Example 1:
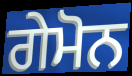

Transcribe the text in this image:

ਗੇਮੋਨ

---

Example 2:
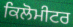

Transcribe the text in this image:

ਕਿਲੋਮੀਟਰ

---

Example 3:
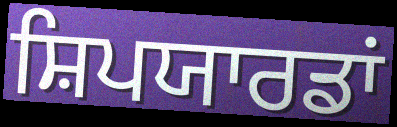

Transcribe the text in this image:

ਸ਼ਿਪਯਾਰਡਾਂ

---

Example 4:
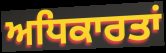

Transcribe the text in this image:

ਅਧਿਕਾਰਤਾਂ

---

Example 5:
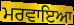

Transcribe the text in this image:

ਮਰਵਾਇਆ